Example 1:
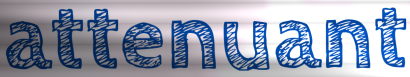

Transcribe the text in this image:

attenuant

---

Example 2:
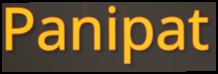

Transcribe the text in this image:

Panipat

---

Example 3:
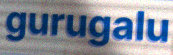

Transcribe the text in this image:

gurugalu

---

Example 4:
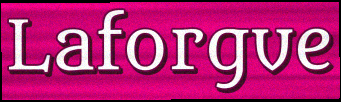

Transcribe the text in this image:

Laforgue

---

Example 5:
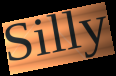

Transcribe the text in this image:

Silly